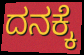
ದನಕ್ಕೆ